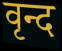
वृन्द